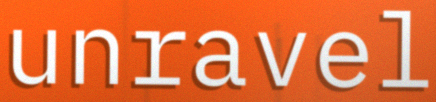
unravel